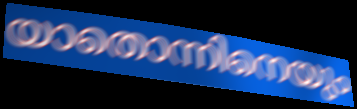
യാതൊന്നിനെയും